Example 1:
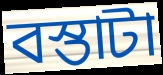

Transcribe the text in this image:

বস্তাটা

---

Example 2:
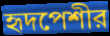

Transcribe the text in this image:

হৃদপেশীর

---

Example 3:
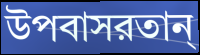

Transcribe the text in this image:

উপবাসরতান্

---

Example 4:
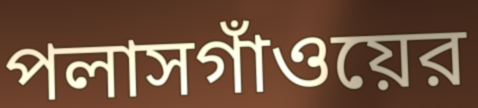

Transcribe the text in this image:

পলাসগাঁওয়ের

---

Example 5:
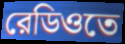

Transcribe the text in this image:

রেডিওতে